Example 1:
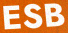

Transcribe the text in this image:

ESB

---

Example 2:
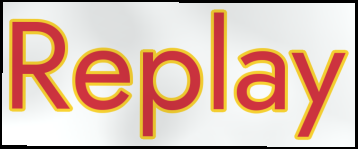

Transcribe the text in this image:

Replay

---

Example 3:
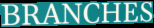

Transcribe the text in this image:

BRANCHES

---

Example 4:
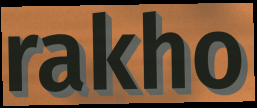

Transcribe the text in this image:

rakho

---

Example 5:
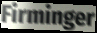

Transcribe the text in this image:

Firminger